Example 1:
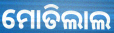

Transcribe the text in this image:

ମୋତିଲାଲ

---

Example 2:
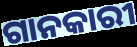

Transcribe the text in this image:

ଗାନକାରୀ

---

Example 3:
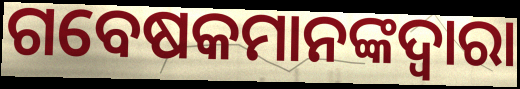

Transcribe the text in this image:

ଗବେଷକମାନଙ୍କଦ୍ୱାରା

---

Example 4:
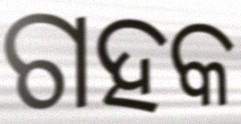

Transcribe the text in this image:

ଗହକ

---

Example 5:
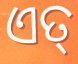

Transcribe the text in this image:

ଏତ୍